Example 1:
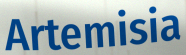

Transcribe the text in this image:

Artemisia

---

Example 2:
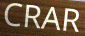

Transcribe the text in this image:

CRAR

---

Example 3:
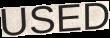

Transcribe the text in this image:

USED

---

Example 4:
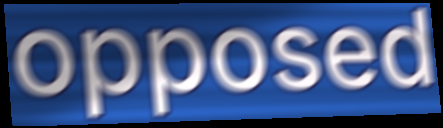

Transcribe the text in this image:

opposed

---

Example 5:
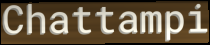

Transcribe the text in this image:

Chattampi